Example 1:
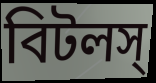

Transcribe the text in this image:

বিটলস্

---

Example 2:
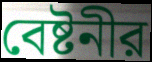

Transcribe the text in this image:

বেষ্টনীর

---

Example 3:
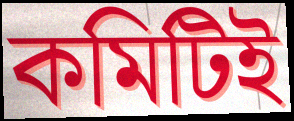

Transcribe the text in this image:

কমিটিই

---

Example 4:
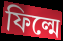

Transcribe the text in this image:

ফিল্মে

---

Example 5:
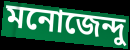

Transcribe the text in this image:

মনোজেন্দু